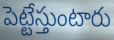
పెట్టేస్తుంటారు